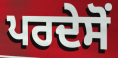
ਪਰਦੇਸੋਂ